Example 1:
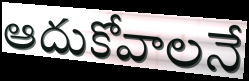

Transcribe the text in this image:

ఆదుకోవాలనే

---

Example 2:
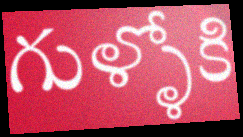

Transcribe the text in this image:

గుళ్ళోకి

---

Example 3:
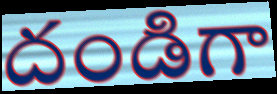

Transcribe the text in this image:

దండిగా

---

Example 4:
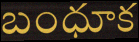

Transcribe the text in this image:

బంధూక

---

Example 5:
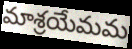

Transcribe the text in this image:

మాశ్రయేమమ